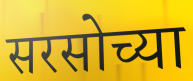
सरसोच्या